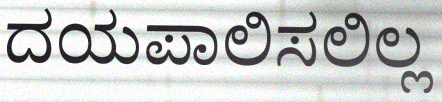
ದಯಪಾಲಿಸಲಿಲ್ಲ